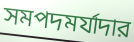
সমপদমর্যাদার